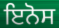
ਇਨੋਸ